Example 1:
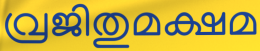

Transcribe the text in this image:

വ്രജിതുമക്ഷമ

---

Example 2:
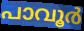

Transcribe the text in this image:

പാവൂർ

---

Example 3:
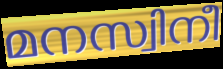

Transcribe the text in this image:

മനസ്വിനീ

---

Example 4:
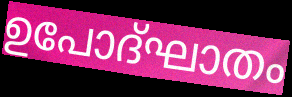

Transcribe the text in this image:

ഉപോദ്ഘാതം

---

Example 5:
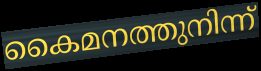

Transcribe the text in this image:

കൈമനത്തുനിന്ന്